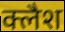
क्लैश